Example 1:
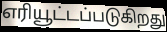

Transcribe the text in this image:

எரியூட்டப்படுகிறது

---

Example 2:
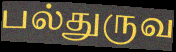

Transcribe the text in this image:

பல்துருவ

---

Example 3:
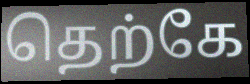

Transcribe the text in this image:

தெற்கே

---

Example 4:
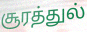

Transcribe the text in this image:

சூரத்துல்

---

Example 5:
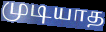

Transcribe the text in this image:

முடியாத